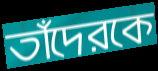
তাঁদেরকে